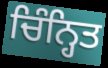
ਚਿੰਨ੍ਹਿਤ